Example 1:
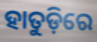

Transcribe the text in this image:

ହାତୁଡ଼ିରେ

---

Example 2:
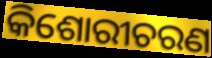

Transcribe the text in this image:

କିଶୋରୀଚରଣ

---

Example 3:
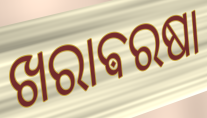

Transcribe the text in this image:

ଖରାଵରଷା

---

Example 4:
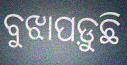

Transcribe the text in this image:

ବୁଝାପଡ଼ୁଛି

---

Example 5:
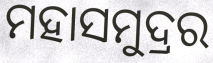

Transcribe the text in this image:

ମହାସମୁଦ୍ରର